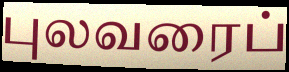
புலவரைப்